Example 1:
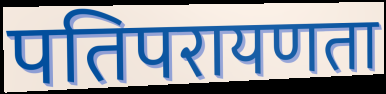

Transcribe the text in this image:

पतिपरायणता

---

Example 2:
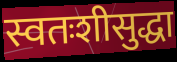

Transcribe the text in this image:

स्वतःशीसुद्धा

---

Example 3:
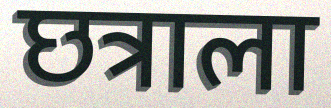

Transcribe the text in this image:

छत्राला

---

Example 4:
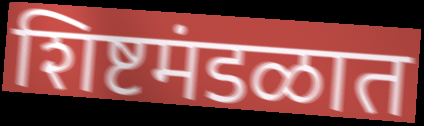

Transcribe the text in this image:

शिष्टमंडळात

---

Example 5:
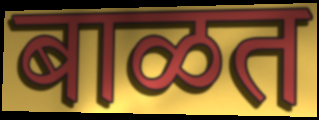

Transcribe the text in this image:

बाळत